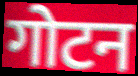
गोटन